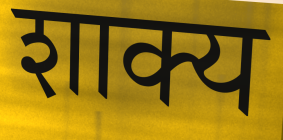
शाक्य